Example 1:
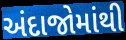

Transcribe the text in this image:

અંદાજોમાંથી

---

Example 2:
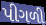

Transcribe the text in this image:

પીગળી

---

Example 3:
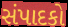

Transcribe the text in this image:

સંપાદકો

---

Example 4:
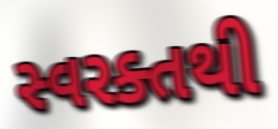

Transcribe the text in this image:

સ્વરક્તથી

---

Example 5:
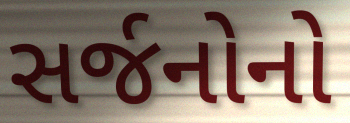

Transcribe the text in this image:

સર્જનોનો